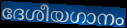
ദേശീയഗാനം